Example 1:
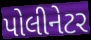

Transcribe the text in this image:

પોલીનેટર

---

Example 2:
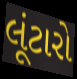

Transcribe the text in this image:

લૂંટારો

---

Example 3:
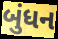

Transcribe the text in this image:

બુંધન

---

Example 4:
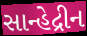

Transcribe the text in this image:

સાન્હેદ્રીન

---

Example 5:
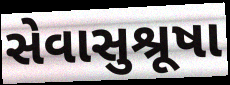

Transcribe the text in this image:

સેવાસુશ્રૂષા